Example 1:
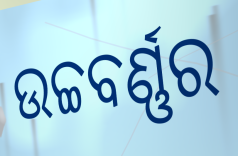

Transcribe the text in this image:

ଉଚ୍ଚବର୍ଣ୍ଣର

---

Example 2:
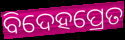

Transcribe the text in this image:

ବିଦେହପ୍ରେତ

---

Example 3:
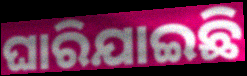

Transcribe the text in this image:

ଘାରିଯାଇଛି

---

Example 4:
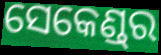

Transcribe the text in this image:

ସେକେଣ୍ଡ୍‌ର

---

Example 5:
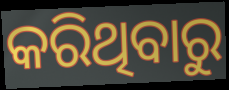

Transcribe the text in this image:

କରିଥିବାରୁ